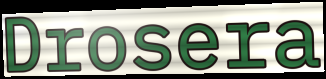
Drosera